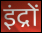
इंद्रों